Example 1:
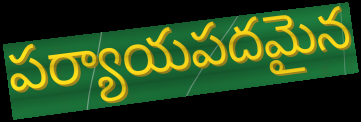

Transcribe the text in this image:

పర్యాయపదమైన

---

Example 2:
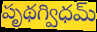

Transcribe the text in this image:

పృథగ్విధమ్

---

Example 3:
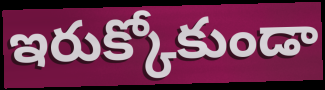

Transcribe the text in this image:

ఇరుక్కోకుండా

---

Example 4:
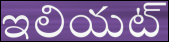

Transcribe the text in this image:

ఇలియట్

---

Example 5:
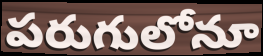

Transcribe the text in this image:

పరుగులోనూ